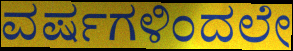
ವರ್ಷಗಳಿಂದಲೇ